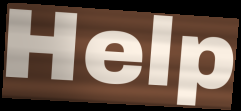
Help